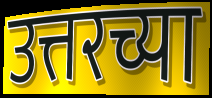
उत्तरच्या